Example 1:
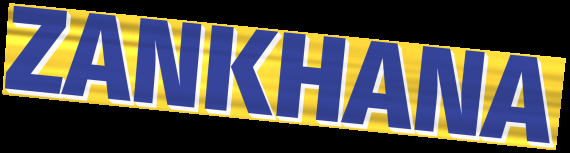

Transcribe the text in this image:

ZANKHANA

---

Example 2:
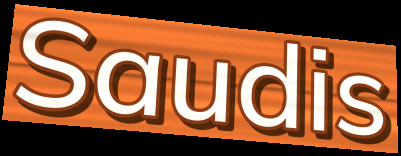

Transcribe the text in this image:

Saudis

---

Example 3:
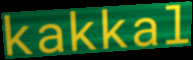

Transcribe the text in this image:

kakkal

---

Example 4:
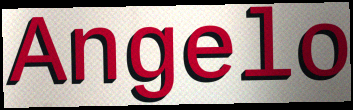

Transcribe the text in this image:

Angelo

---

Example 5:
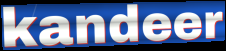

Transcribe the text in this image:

kandeer